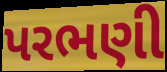
પરભણી